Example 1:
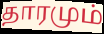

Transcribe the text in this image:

தாரமும்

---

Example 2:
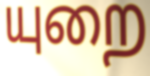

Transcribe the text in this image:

யுறை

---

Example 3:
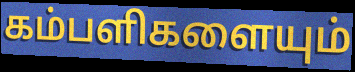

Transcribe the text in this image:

கம்பளிகளையும்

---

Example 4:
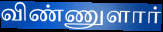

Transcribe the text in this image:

விண்ணுளார்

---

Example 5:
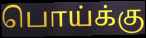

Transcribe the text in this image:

பொய்க்கு